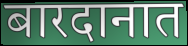
बारदानात